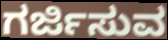
ಗರ್ಜಿಸುವ